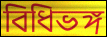
বিধিভঙ্গ